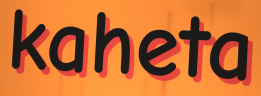
kaheta